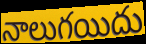
నాలుగయిదు